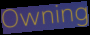
Owning